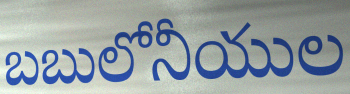
బబులోనీయుల